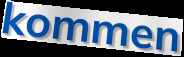
kommen